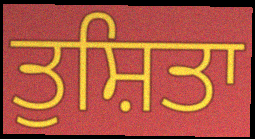
ਤੁਸ਼ਿਤਾ